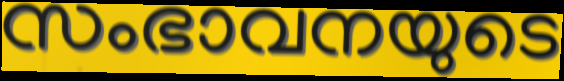
സംഭാവനയുടെ